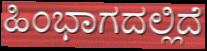
ಹಿಂಭಾಗದಲ್ಲಿದೆ